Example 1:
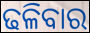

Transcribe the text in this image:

ଢଳିବାର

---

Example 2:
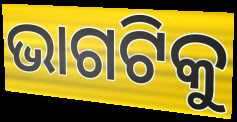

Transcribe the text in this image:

ଭାଗଟିକୁ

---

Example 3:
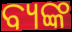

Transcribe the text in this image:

ବ୍ୟଙ୍କ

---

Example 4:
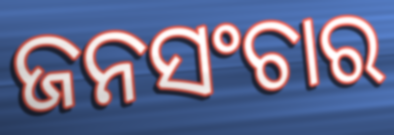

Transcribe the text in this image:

ଜନସଂଚାର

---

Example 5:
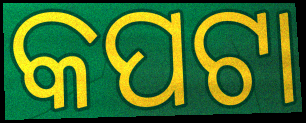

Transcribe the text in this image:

କପଟା